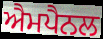
ਐਮਪੈਨਲ